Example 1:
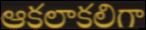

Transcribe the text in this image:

ఆకలాకలిగా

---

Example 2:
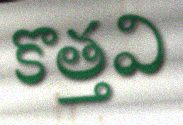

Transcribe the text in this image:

కొత్తవి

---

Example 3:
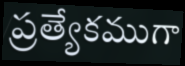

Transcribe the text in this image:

ప్రత్యేకముగా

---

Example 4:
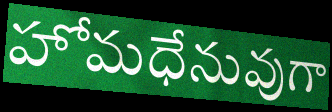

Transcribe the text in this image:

హోమధేనువుగా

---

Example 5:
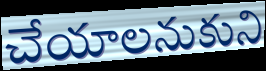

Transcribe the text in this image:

చేయాలనుకుని